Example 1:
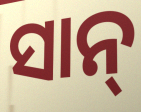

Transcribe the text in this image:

ସାନ୍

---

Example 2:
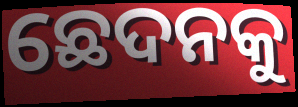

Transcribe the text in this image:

ଛେଦନକୁ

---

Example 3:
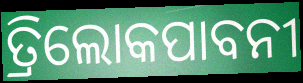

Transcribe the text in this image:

ତ୍ରିଲୋକପାବନୀ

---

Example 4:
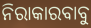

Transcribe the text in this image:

ନିରାକାରବାବୁ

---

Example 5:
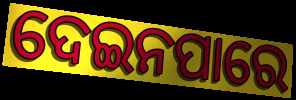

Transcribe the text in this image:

ଦେଇନପାରେ